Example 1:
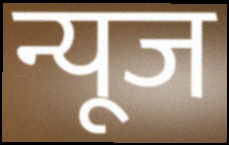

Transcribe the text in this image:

न्यूज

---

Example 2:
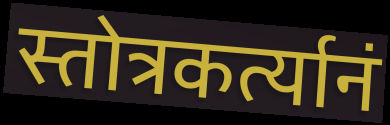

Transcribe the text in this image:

स्तोत्रकर्त्यानं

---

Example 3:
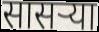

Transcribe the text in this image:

सासर्‍या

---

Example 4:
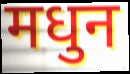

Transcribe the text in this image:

मधुन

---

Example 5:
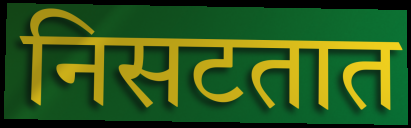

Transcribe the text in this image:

निसटतात